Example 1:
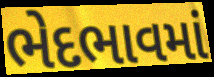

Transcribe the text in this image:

ભેદભાવમાં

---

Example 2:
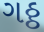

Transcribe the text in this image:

ગઠ્ઠ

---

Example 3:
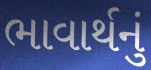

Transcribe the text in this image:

ભાવાર્થનું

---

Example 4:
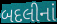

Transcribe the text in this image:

બદલીનાં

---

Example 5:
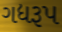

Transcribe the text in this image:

ગદ્યરૂપ